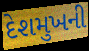
દેશમુખની